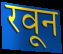
रवून